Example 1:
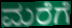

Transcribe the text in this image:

ಮರೆಗೆ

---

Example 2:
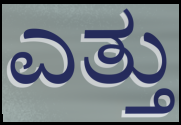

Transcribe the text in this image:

ಎತ್ತು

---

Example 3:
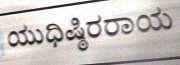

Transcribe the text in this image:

ಯುಧಿಷ್ಠಿರರಾಯ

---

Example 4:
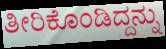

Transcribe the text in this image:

ತೀರಿಕೊಂಡಿದ್ದನ್ನು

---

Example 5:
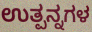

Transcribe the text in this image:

ಉತ್ಪನ್ನಗಳ